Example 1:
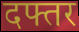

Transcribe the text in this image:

दफ्तर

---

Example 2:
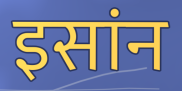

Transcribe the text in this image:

इसांन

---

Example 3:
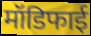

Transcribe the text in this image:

मॉडिफाई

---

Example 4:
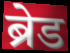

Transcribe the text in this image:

ब्रेड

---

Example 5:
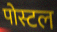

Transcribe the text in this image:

पोस्टल